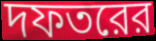
দফতরের